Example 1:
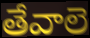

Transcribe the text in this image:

తేవాలె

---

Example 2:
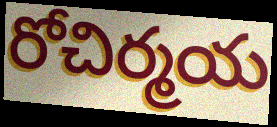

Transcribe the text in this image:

రోచిర్మయ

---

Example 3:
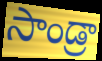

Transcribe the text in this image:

సాండ్రా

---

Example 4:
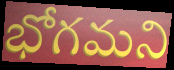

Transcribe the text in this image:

భోగమని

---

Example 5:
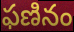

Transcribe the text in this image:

ఫణినం